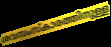
ശവസംസ്കാരത്തിനുള്ള